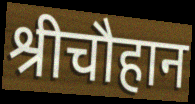
श्रीचौहान